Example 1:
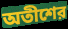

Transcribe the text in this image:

অতীশের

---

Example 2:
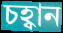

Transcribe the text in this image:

চহ্বান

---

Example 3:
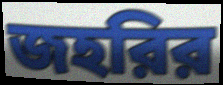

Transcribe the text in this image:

জহরির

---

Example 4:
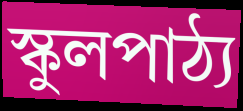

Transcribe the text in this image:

স্কুলপাঠ্য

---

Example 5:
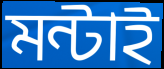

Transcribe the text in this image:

মন্টাই